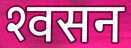
श्वसन